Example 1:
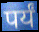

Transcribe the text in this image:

पर्यं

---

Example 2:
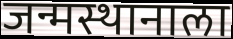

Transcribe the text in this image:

जन्मस्थानाला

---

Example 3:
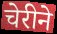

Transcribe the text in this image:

चेरीने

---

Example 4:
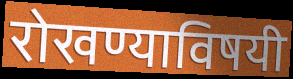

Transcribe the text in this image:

रोखण्याविषयी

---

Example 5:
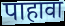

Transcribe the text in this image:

पाहावा